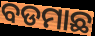
ବଡମାଛ